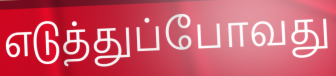
எடுத்துப்போவது